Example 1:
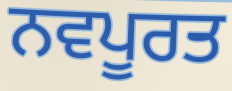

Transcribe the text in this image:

ਨਵਪੂਰਤ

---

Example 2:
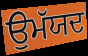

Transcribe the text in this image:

ਉਮੱਯਦ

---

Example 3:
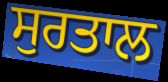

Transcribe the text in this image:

ਸੁਰਤਾਲ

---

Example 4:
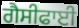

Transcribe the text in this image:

ਗੈਸੀਫਾਈ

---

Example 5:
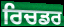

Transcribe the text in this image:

ਰਿਚਡਰ